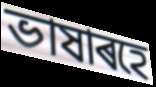
ভাষাৰহে